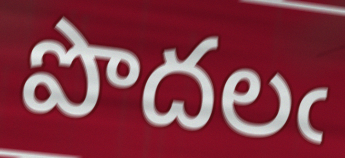
పొదలఁ